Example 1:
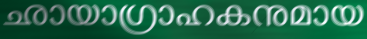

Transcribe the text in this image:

ഛായാഗ്രാഹകനുമായ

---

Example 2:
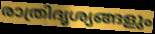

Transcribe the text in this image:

രാത്രിദൃശ്യങ്ങളും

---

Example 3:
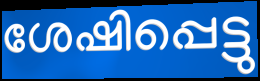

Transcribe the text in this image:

ശേഷിപ്പെട്ടു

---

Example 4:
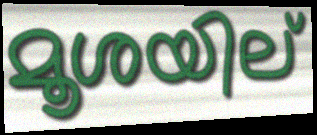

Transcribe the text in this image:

മൂശയില്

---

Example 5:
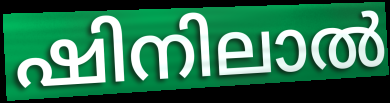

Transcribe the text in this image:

ഷിനിലാൽ